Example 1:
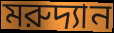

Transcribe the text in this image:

মৰুদ্যান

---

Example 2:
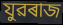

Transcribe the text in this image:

যুৱৰাজ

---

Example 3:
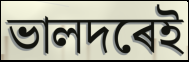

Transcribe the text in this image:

ভালদৰেই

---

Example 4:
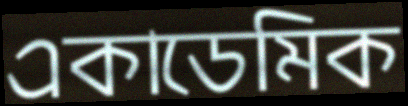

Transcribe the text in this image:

একাডেমিক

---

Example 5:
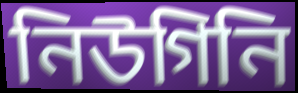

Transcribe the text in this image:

নিউগিনি